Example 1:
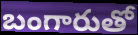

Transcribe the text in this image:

బంగారుతో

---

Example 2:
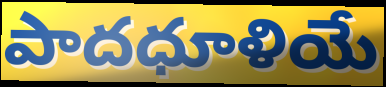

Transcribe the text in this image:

పాదధూళియే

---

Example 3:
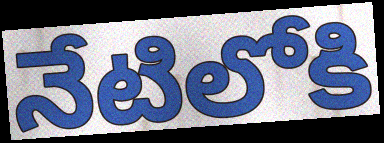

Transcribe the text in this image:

నేటిలోకి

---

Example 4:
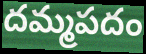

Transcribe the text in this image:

దమ్మపదం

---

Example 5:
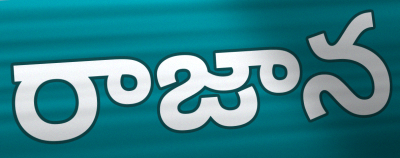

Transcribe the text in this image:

రాజాన